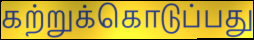
கற்றுக்கொடுப்பது